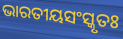
ଭାରତୀୟସଂସ୍କୃତଃ